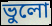
ভুলো